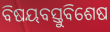
ବିଷୟବସ୍ତୁବିଶେଷ